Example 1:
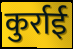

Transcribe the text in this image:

कुर्राई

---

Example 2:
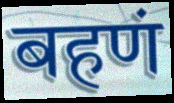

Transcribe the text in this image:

बहणं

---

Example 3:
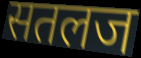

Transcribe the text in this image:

सतलज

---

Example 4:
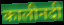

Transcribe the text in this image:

कालीनदी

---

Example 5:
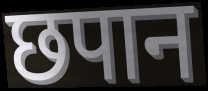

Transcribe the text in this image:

छपान